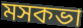
মসকভা